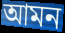
আমন